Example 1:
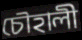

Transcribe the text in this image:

চৌহালী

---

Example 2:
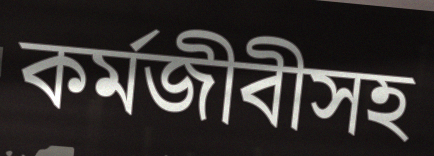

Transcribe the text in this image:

কর্মজীবীসহ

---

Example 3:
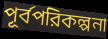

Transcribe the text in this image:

পূর্বপরিকল্পনা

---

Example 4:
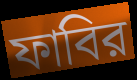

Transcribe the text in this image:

ফাবির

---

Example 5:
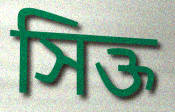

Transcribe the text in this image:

সিক্ত